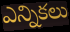
ఎన్నికలు